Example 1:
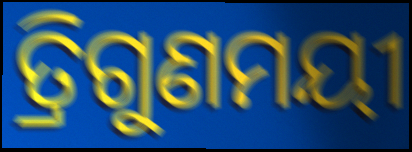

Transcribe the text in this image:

ତ୍ରିଗୁଣମୟୀ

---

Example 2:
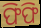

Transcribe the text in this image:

ଫିଫି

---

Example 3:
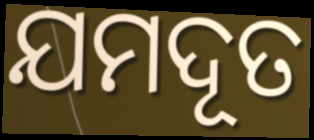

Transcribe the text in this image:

ଯମଦୂତ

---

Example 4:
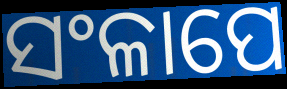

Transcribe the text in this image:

ସଂଳାପେ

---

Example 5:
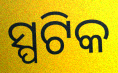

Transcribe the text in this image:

ସ୍ପଟିକ